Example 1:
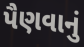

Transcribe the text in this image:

પૈણવાનું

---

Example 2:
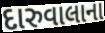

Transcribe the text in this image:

દારુવાલાના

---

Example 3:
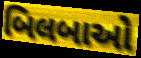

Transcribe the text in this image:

બિલબાઓ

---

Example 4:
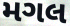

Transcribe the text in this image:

મગલ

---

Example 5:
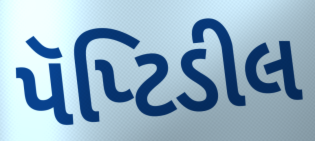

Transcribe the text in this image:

પૅપ્ટિડીલ